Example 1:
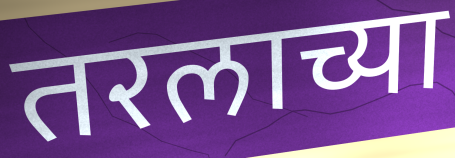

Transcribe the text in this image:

तरलाच्या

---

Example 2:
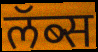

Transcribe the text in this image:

लॅब्स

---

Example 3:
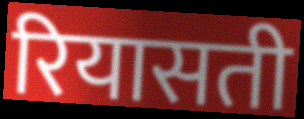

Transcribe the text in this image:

रियासती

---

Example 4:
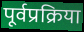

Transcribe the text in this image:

पूर्वप्रक्रिया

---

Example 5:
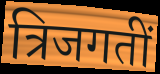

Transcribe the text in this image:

त्रिजगतीं